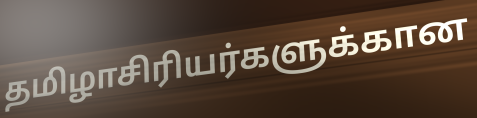
தமிழாசிரியர்களுக்கான